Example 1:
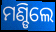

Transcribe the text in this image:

ମଣ୍ଡିଲେ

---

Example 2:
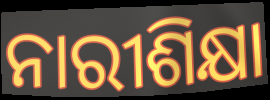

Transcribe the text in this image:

ନାରୀଶିକ୍ଷା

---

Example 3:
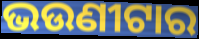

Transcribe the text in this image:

ଭଉଣୀଟାର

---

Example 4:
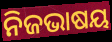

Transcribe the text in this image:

ନିଜଭାଷୟ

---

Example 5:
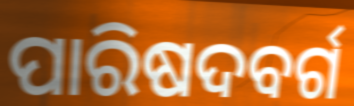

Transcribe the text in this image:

ପାରିଷଦବର୍ଗ